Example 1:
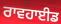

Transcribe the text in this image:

ਰਾਵਹਾਈਡ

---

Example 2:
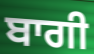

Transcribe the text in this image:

ਬਾਗੀ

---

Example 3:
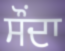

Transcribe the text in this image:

ਸੌਂਦਾ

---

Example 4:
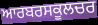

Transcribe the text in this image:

ਆਰਬਰਸਕੂਲਚਰ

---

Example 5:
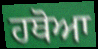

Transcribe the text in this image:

ਹਥੋਆ